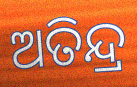
ଅତିନ୍ଦ୍ର